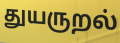
துயருறல்